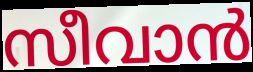
സീവാൻ